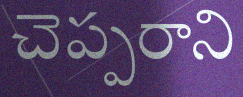
చెప్పరాని